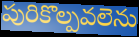
పురికొల్పవలెను